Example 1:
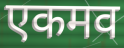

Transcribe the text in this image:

एकमव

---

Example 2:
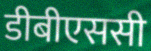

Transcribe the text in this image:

डीबीएससी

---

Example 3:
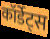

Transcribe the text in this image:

कॉर्डेट्स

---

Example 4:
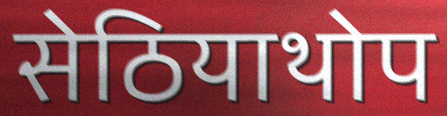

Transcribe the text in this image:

सेठियाथोप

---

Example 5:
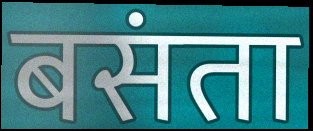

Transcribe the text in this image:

बसंता